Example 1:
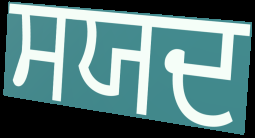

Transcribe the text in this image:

ਸਯਦ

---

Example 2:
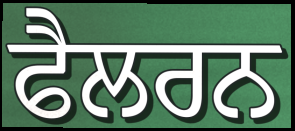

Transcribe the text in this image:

ਫੈਲਰਨ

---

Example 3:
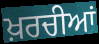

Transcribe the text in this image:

ਖ਼ਰਚੀਆਂ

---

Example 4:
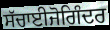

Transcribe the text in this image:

ਸੱਚਾਈਜੋਗਿੰਦਰ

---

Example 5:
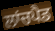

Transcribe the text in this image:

ਲਾਂਚਪੈਡ